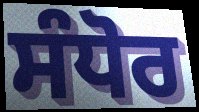
ਸੰਧੋਰ